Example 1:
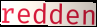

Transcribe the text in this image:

redden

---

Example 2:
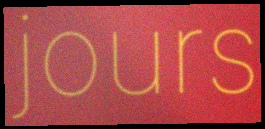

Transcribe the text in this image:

jours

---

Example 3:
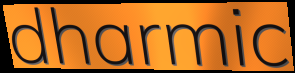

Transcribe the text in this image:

dharmic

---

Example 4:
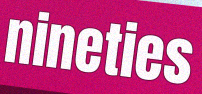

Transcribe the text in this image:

nineties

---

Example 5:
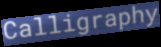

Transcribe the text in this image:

Calligraphy